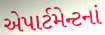
એપાર્ટમેન્ટનાં